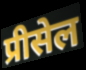
प्रीसेल